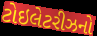
ટોઇલેટરીઝનો